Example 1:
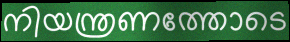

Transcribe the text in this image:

നിയന്ത്രണത്തോടെ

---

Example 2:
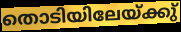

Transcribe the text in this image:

തൊടിയിലേയ്ക്കു്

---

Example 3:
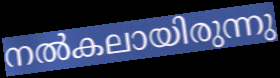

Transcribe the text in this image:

നൽകലായിരുന്നു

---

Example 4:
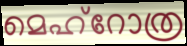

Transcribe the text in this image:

മെഹ്റോത്ര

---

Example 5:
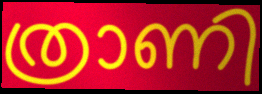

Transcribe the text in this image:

ത്രാണി